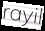
rayil